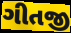
ગીતજી